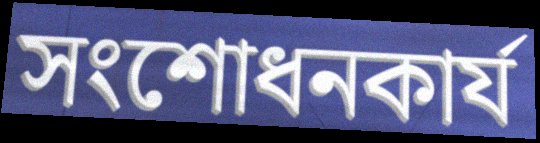
সংশোধনকার্য